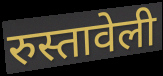
रुस्तावेली